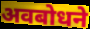
अवबोधने